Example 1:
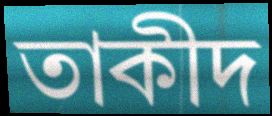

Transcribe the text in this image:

তাকীদ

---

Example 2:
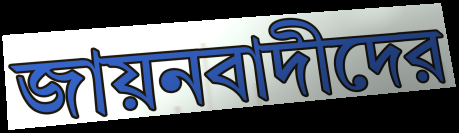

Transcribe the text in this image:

জায়নবাদীদের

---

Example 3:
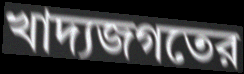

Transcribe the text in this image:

খাদ্যজগতের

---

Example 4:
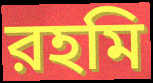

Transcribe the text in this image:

রহমি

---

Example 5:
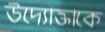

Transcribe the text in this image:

উদ্যোক্তাকে